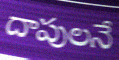
దాపులనే